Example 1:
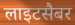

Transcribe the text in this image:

लाइटसैबर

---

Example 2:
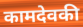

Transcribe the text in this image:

कामदेवकी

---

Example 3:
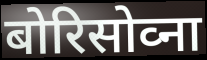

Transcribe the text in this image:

बोरिसोव्ना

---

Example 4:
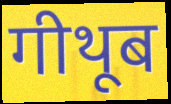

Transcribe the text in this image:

गीथूब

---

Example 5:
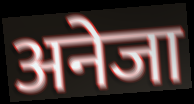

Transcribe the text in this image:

अनेजा